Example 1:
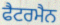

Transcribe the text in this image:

ਫੈਟਰਮੈਨ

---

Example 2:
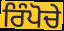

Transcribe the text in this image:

ਰਿੰਪੋਚੇ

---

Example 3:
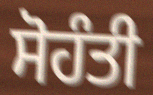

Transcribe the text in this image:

ਸੋਹੰਤੀ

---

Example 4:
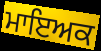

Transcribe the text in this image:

ਮਾਇਅਕ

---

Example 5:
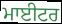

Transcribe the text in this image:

ਮਾਈਟਰ